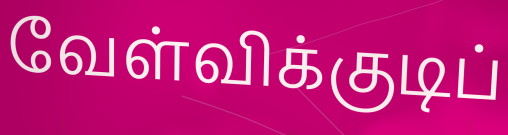
வேள்விக்குடிப்